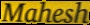
Mahesh